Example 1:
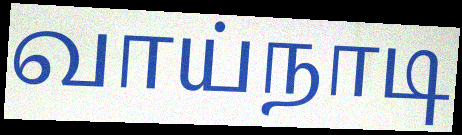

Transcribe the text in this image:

வாய்நாடி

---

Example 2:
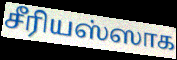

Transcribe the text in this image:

சீரியஸ்ஸாக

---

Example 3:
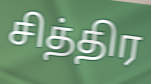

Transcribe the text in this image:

சித்திர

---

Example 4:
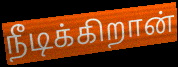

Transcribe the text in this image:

நீடிக்கிறான்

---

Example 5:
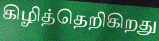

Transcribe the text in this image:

கிழித்தெறிகிறது